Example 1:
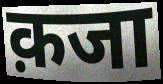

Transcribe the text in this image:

क़जा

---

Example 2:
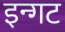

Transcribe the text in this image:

इन्गट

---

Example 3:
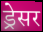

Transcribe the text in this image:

ड्रेसर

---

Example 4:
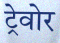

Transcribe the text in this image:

ट्रेवोर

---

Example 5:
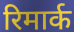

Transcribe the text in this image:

रिमार्क